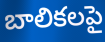
బాలికలపై